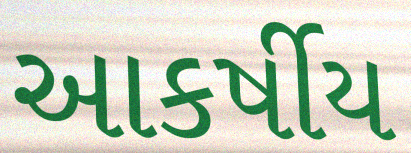
આકર્ષીય